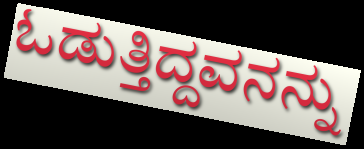
ಓಡುತ್ತಿದ್ದವನನ್ನು